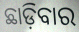
ଛାଡ଼ିବାର